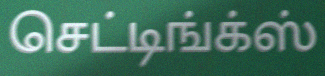
செட்டிங்க்ஸ்